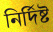
নির্দিষ্ট